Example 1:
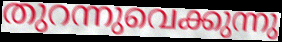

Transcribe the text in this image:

തുറന്നുവെക്കുന്നു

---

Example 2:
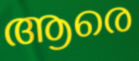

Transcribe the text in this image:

ആരെ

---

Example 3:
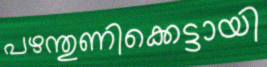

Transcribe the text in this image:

പഴന്തുണിക്കെട്ടായി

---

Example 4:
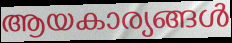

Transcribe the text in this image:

ആയകാര്യങ്ങൾ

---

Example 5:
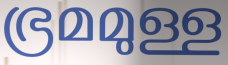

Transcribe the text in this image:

ഭ്രമമുള്ള